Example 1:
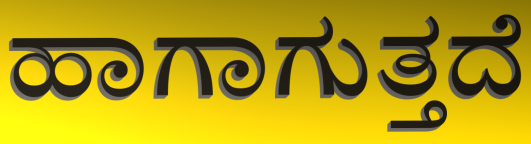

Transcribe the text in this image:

ಹಾಗಾಗುತ್ತದೆ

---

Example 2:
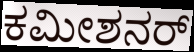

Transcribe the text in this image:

ಕಮೀಶನರ್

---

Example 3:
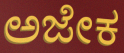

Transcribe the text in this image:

ಅಜೇಕ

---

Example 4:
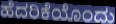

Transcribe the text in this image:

ಹೆದರಿಕೆಯೊಂದು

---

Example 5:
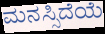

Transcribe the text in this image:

ಮನಸ್ಸಿದೆಯೆ